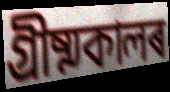
গ্ৰীষ্মকালৰ